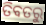
ତିବତରୁ